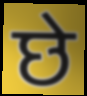
छे